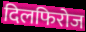
दिलफिरोज